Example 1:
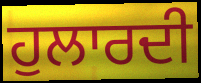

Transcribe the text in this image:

ਹੁਲਾਰਦੀ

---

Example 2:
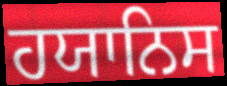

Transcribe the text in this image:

ਹਯਾਨਿਸ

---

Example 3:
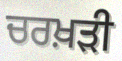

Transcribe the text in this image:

ਚਰਖ਼ੜੀ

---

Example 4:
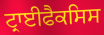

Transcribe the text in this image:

ਟ੍ਰਾਈਫੈਕਸਿਸ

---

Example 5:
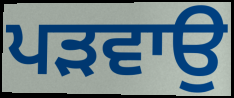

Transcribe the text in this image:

ਪੜਵਾਉ